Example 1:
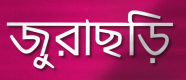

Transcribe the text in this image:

জুরাছড়ি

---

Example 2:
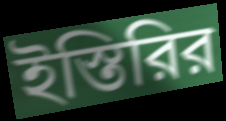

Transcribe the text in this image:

ইস্তিরির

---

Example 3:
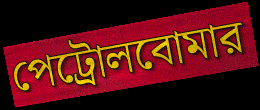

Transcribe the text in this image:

পেট্রোলবোমার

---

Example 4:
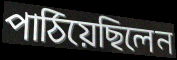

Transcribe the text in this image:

পাঠিয়েছিলেন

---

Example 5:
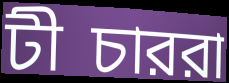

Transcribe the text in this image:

টীচাররা